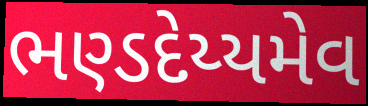
ભણ્ડદેય્યમેવ